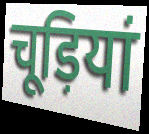
चूड़ियां